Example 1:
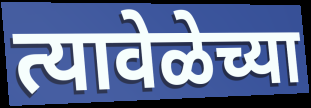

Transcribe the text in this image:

त्यावेळेच्या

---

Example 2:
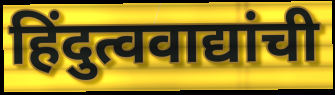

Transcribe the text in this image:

हिंदुत्ववाद्यांची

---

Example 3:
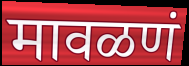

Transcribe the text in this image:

मावळणं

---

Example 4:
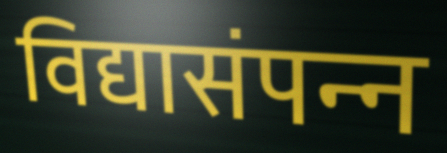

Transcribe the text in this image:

विद्यासंपन्न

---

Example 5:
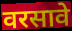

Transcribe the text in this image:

वरसावे